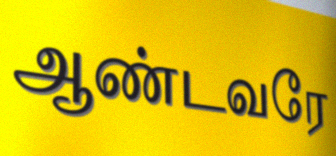
ஆண்டவரே